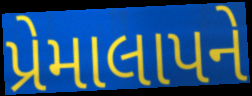
પ્રેમાલાપને